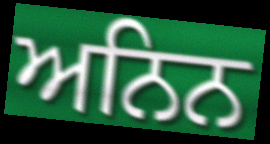
ਅਨਿਨ